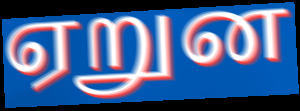
ஏறுன